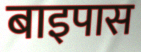
बाइपास